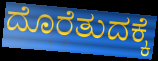
ದೊರೆತುದಕ್ಕೆ